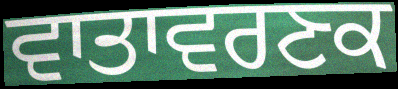
ਵਾਤਾਵਰਣਕ